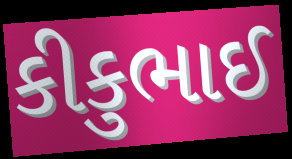
કીકુભાઈ